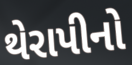
થેરાપીનો